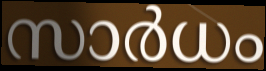
സാർധം